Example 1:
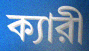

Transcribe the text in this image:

ক্যারী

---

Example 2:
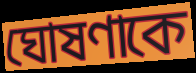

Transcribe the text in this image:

ঘোষণাকে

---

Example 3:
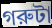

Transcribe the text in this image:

গরুটা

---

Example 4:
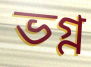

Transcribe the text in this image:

ভগ্ন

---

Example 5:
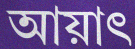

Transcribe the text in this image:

আয়াৎ